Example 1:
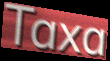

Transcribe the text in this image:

Taxa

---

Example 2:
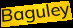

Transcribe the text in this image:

Baguley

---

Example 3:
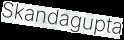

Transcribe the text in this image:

Skandagupta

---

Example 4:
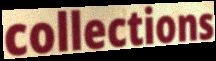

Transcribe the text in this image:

collections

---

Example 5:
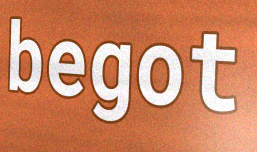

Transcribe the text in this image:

begot